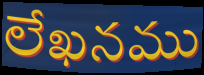
లేఖనము